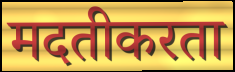
मदतीकरता